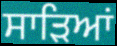
ਸਾੜਿਆਂ